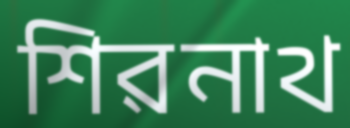
শিৱনাথ